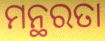
ମନ୍ଥରତା